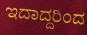
ಇದಾದ್ದರಿಂದ